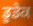
ਡੂਡੇਕ